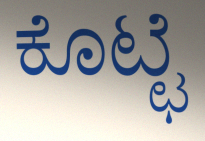
ಕೊಟ್ಟೆ